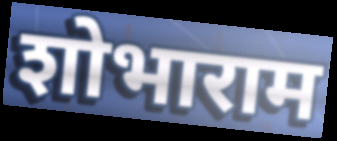
शोभाराम